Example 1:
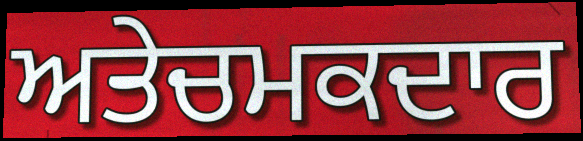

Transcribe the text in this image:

ਅਤੇਚਮਕਦਾਰ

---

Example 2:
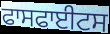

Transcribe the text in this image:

ਫਾਸਫਾਈਟਸ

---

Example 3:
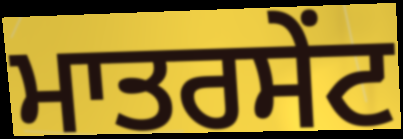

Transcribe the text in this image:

ਮਾਤਰਸੇਂਟ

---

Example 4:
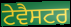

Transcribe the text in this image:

ਟੇਵੈਸਟਰ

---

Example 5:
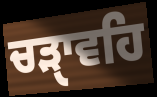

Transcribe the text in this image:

ਚੜੑਾਵਹਿ